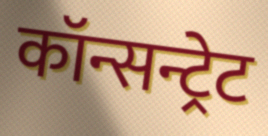
कॉन्सन्ट्रेट